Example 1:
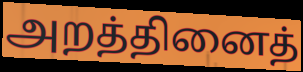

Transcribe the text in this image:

அறத்தினைத்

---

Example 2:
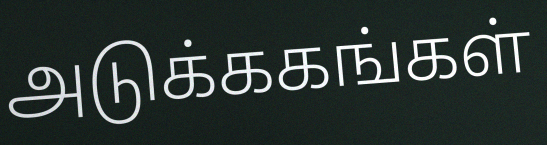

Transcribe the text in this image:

அடுக்ககங்கள்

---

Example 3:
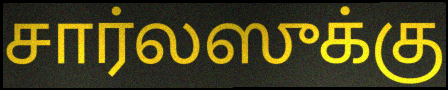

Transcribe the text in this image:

சார்லஸுக்கு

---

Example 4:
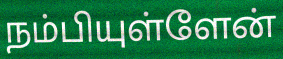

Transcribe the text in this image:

நம்பியுள்ளேன்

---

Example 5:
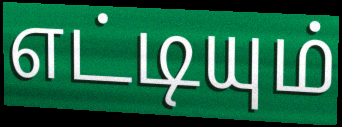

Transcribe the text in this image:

எட்டியும்